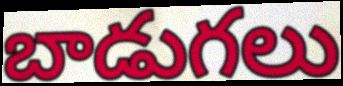
బాడుగలు